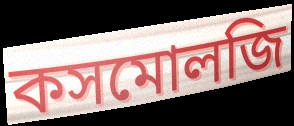
কসমোলজি